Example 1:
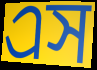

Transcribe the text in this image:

এস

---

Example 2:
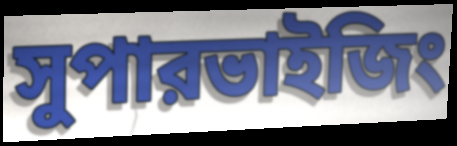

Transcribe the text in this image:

সুপারভাইজিং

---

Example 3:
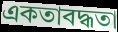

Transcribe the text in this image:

একতাবদ্ধতা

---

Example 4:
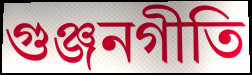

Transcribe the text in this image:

গুঞ্জনগীতি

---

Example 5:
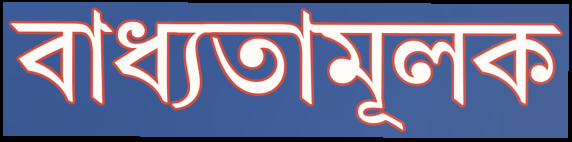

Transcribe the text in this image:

বাধ্যতামূলক